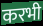
करभी